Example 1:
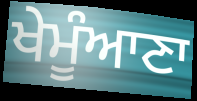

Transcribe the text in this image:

ਖੇਮੂੰਆਣਾ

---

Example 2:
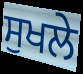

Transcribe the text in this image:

ਸੁਖਲੇ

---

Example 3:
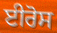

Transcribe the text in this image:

ਈਰੋਸ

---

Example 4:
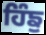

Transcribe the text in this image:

ਹਿੰਙੁ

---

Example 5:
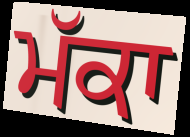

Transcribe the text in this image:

ਮੱਕਾ